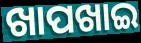
ଖାପଖାଇ